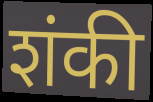
शंकी